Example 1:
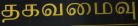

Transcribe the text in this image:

தகவமைவு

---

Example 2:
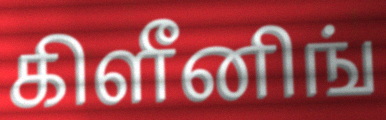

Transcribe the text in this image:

கிளீனிங்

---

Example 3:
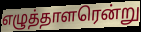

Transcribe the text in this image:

எழுத்தாளரென்று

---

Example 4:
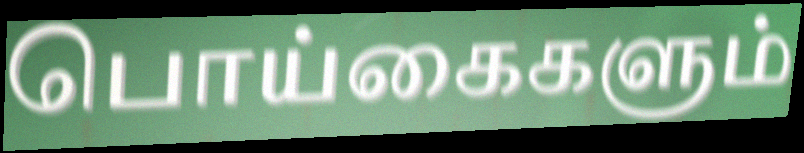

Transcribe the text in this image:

பொய்கைகளும்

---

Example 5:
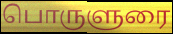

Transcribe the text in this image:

பொருளுரை